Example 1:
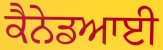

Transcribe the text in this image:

ਕੈਨੇਡਆਈ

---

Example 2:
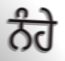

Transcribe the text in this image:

ਨੰਹੇ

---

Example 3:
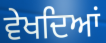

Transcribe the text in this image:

ਵੇਖਦਿਆਂ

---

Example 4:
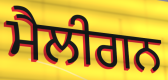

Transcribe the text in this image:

ਮੈਲੀਗਨ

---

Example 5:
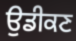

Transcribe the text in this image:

ਉਡੀਕਣ